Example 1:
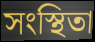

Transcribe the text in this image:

সংস্থিতা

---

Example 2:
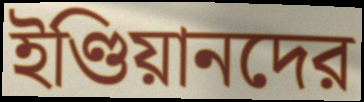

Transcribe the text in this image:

ইণ্ডিয়ানদের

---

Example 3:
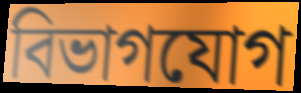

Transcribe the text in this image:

বিভাগযোগ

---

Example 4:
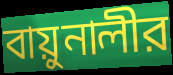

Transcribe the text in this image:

বায়ুনালীর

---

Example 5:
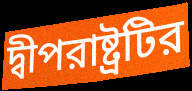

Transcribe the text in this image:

দ্বীপরাষ্ট্রটির